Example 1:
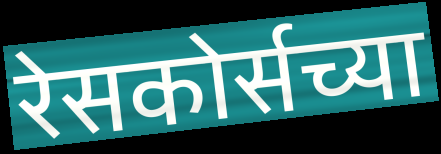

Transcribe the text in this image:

रेसकोर्सच्या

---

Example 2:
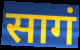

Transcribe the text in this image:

सागं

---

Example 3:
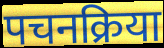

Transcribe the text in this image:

पचनक्रिया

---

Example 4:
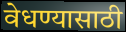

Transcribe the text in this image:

वेधण्यासाठी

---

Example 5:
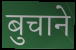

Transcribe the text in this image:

बुचाने